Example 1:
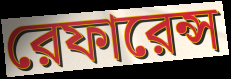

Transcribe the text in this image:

রেফারেন্স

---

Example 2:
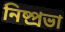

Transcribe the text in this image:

নিষ্প্রভা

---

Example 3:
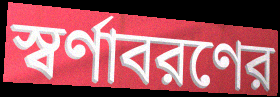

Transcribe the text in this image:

স্বর্ণাবরণের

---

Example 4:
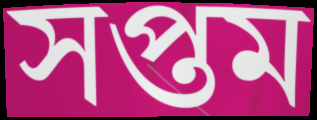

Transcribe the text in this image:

সপ্তম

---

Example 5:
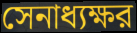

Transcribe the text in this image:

সেনাধ্যক্ষর